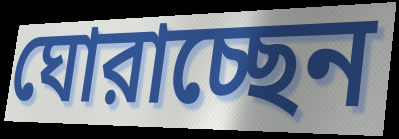
ঘোরাচ্ছেন